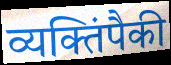
व्यक्तिंपैकी